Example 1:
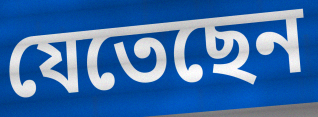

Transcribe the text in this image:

যেতেছেন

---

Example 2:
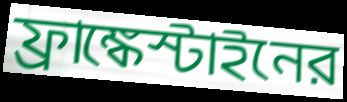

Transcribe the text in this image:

ফ্রাঙ্কেস্টাইনের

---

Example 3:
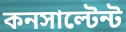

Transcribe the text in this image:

কনসাল্টেন্ট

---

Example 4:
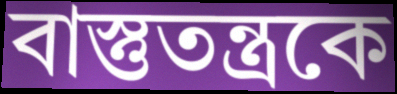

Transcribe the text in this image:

বাস্তুতন্ত্রকে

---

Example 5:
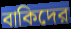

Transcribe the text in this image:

বাকিদের